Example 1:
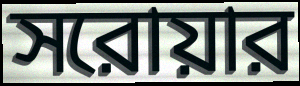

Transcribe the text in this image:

সরোয়ার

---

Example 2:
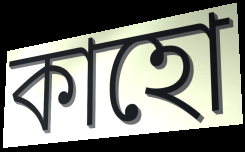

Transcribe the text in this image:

কাহো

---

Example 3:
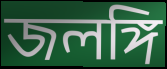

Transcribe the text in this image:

জলঙ্গি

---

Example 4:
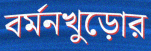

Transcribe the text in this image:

বর্মনখুড়োর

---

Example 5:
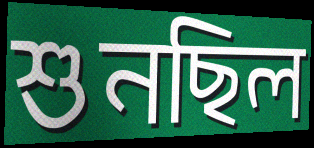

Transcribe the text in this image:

শুনছিল